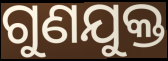
ଗୁଣଯୁକ୍ତ